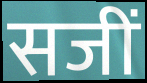
सजीं